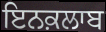
ਇਨਕ਼ਲਾਬ